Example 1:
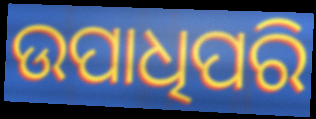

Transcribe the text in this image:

ଉପାଧିପରି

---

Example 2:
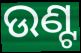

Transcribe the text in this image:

ଉଣ୍ଟ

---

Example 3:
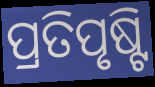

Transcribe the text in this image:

ପ୍ରତିପୃଷ୍ଟି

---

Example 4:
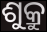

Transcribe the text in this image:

ଶୁକ୍ରୁ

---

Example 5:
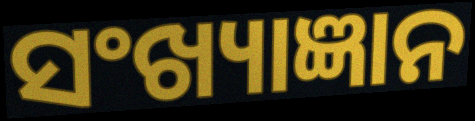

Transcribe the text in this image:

ସଂଖ୍ୟାଜ୍ଞାନ